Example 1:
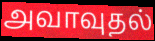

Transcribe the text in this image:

அவாவுதல்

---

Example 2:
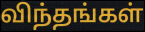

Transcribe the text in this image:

விந்தங்கள்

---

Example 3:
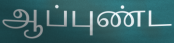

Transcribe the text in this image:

ஆப்புண்ட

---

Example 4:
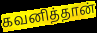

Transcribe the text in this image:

கவனித்தான்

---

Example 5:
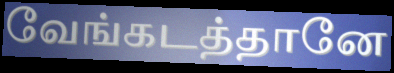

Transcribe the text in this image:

வேங்கடத்தானே